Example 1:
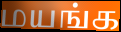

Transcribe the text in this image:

மயங்க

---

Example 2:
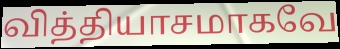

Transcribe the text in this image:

வித்தியாசமாகவே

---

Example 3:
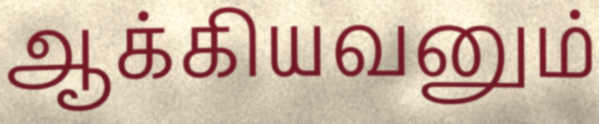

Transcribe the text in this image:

ஆக்கியவனும்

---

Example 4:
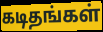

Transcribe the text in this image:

கடிதங்கள்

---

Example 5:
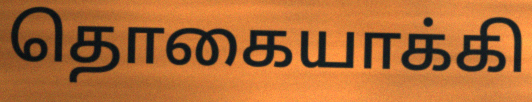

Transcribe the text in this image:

தொகையாக்கி